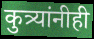
कुत्र्यांनीही